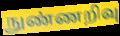
நுண்ணறிவு